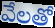
వేలతో